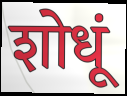
शोधूं